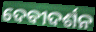
ଦେବୀଦର୍ଶନ